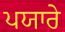
ਪਯਾਰੇ